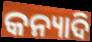
କନ୍ୟାଦି